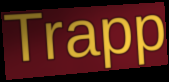
Trapp